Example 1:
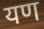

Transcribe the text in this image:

यण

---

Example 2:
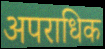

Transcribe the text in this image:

अपराधिक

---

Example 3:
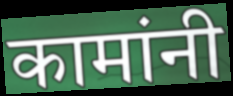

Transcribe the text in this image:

कामांनी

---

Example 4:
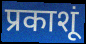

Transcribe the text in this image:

प्रकाशूं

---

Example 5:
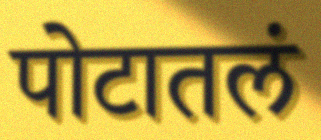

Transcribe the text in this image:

पोटातलं